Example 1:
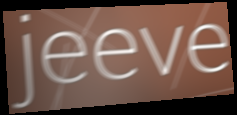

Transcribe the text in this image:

jeeve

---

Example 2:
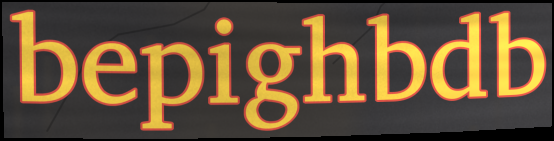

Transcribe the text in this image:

bepighbdb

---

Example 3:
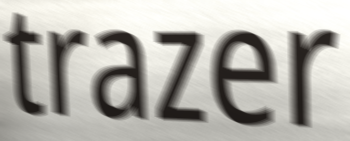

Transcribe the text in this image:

trazer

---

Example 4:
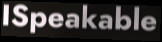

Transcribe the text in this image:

ISpeakable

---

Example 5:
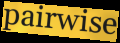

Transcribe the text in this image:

pairwise